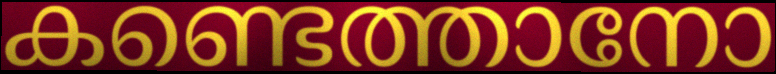
കണ്ടെത്താനോ